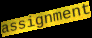
assignment